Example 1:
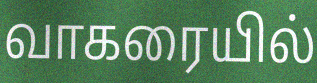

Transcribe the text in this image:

வாகரையில்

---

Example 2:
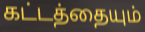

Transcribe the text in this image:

கட்டத்தையும்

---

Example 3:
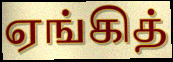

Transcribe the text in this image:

ஏங்கித்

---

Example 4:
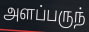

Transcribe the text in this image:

அளப்பருந்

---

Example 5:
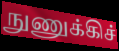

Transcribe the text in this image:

நுணுக்கிச்